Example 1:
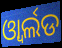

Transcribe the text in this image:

ଓ୍ବାର୍ଲଡ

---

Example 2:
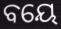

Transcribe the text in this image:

ବୟେ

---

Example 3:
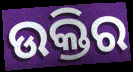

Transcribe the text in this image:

ଉକ୍ତିର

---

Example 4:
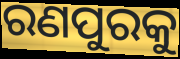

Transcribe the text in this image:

ରଣପୁରକୁ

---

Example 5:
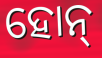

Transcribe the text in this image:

ହୋନ୍